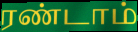
ரண்டாம்